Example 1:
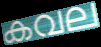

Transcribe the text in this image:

കവല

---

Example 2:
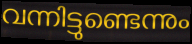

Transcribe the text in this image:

വന്നിട്ടുണ്ടെന്നും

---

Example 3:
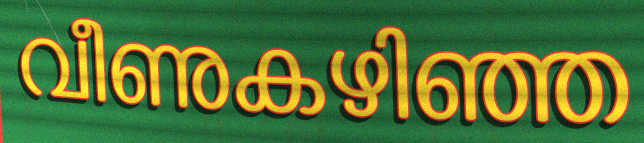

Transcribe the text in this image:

വീണുകഴിഞ്ഞ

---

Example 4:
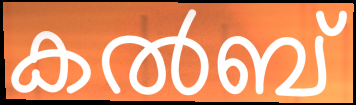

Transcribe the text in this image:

കൽബ്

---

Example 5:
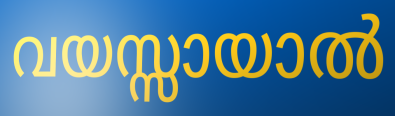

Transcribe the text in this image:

വയസ്സായാൽ